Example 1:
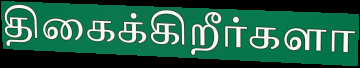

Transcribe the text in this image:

திகைக்கிறீர்களா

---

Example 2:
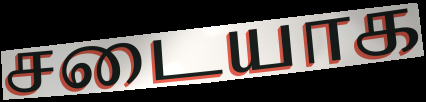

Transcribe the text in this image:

சடையாக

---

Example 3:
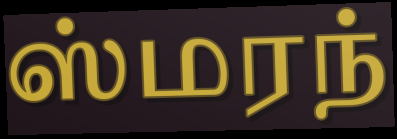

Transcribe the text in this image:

ஸ்மரந்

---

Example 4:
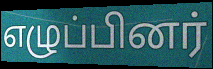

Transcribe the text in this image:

எழுப்பினர்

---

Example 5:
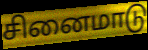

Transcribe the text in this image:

சினைமாடு